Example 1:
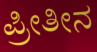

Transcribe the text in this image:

ಪ್ರೀತೀನ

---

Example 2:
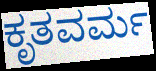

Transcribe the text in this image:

ಕೃತವರ್ಮ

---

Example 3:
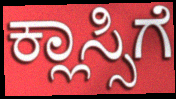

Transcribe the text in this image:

ಕ್ಲಾಸ್ಸಿಗೆ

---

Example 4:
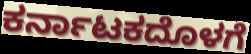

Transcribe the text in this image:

ಕರ್ನಾಟಕದೊಳಗೆ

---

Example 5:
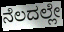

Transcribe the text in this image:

ನೆಲದಲ್ಲೇ